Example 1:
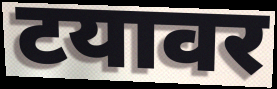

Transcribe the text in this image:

टयावर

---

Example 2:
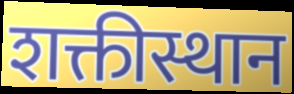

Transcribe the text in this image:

शक्तीस्थान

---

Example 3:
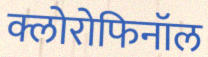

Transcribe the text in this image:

क्लोरोफिनॉल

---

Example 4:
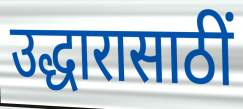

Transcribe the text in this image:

उद्धारासाठीं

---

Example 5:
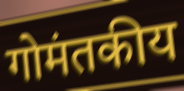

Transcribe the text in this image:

गोमंतकीय